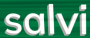
salvi